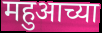
महुआच्या